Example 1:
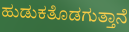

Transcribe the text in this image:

ಹುಡುಕತೊಡಗುತ್ತಾನೆ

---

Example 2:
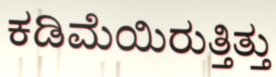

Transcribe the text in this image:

ಕಡಿಮೆಯಿರುತ್ತಿತ್ತು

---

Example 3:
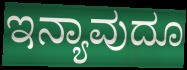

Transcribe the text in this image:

ಇನ್ಯಾವುದೂ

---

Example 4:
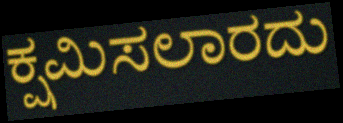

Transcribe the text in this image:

ಕ್ಷಮಿಸಲಾರದು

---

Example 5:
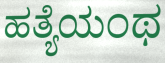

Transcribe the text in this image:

ಹತ್ಯೆಯಂಥ